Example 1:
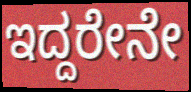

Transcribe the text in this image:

ಇದ್ದರೇನೇ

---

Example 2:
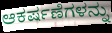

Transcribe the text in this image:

ಆಕರ್ಷಣೆಗಳನ್ನು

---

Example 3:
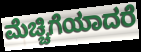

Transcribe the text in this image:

ಮೆಚ್ಚಿಗೆಯಾದರೆ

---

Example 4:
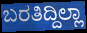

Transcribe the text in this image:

ಬರತಿದ್ದಿಲ್ಲಾ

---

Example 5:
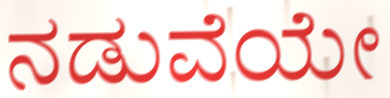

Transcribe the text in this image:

ನಡುವೆಯೇ